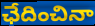
ఛేదించినా